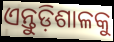
ଏନ୍ତୁଡ଼ିଶାଳକୁ